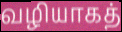
வழியாகத்